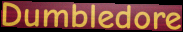
Dumbledore